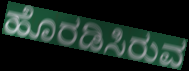
ಹೊರಡಿಸಿರುವ